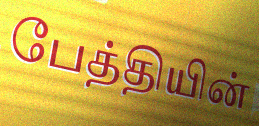
பேத்தியின்